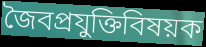
জৈবপ্রযুক্তিবিষয়ক